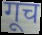
गूच